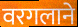
वरगलाने